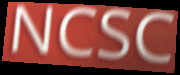
NCSC